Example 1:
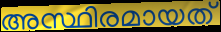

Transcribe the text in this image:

അസ്ഥിരമായത്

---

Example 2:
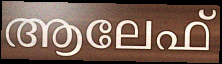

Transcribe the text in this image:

ആലേഫ്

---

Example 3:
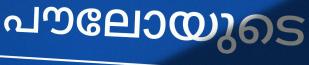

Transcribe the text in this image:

പൗലോയുടെ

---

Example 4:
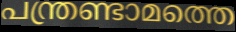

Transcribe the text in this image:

പന്ത്രണ്ടാമത്തെ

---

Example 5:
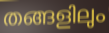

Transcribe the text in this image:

തങ്ങളിലും